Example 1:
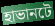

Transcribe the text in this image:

হাভানটে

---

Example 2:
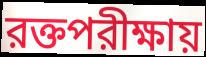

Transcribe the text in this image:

রক্তপরীক্ষায়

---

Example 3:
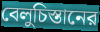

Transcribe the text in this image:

বেলুচিস্তানের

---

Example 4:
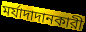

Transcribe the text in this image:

মর্যাদাদানকারী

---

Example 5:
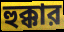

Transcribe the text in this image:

হুক্কার